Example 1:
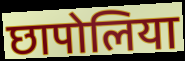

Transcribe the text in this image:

छापोलिया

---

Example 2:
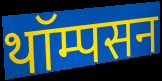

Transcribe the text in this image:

थॉम्पसन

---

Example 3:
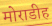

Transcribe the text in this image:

मोराडीह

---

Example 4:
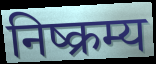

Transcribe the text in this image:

निष्क्रम्य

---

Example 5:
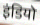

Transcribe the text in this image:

इंडियो